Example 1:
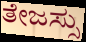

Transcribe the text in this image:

ತೇಜಸ್ಸು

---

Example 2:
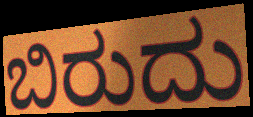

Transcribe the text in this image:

ಬಿರುದು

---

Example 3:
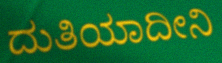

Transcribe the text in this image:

ದುತಿಯಾದೀನಿ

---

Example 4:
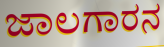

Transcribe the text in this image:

ಜಾಲಗಾರನ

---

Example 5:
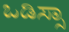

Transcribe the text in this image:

ಒಡಿಸ್ಸಾ